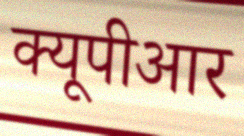
क्यूपीआर